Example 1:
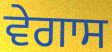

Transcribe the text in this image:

ਵੇਗਾਸ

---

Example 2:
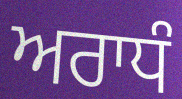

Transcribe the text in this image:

ਅਰਾਧੰ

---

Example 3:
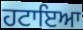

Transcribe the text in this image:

ਹਟਾਇਆ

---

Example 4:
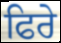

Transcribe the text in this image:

ਫਿਰੇ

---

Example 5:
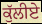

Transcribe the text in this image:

ਕੁੱਲੀਏ